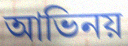
আভিনয়